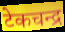
टेकचन्द्र